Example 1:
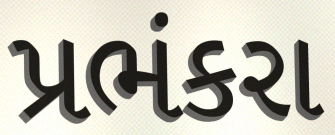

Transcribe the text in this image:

પ્રભંકરા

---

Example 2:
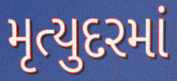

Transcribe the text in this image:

મૃત્યુદરમાં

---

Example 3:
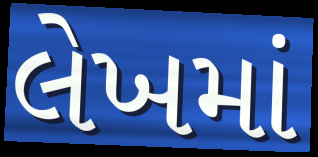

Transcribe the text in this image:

લેખમાં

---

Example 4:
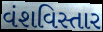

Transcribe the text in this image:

વંશવિસ્તાર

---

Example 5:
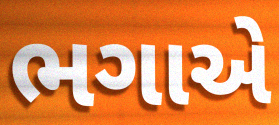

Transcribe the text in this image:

ભગાએ